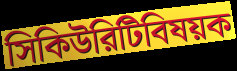
সিকিউরিটিবিষয়ক